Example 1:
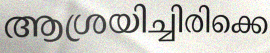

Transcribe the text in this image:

ആശ്രയിച്ചിരിക്കെ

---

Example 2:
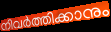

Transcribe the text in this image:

നിവർത്തിക്കാനും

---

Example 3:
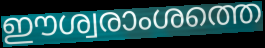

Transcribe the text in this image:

ഈശ്വരാംശത്തെ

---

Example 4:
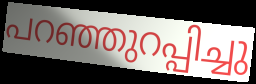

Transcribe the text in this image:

പറഞ്ഞുറപ്പിച്ചു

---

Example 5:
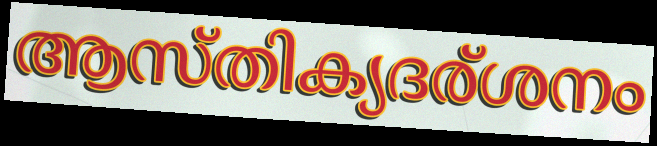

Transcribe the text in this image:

ആസ്തിക്യദര്ശനം